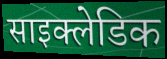
साइक्लेडिक